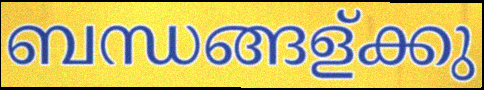
ബന്ധങ്ങള്ക്കു